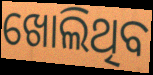
ଖୋଲିଥିବ